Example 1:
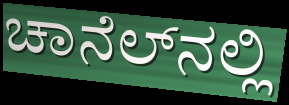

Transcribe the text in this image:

ಚಾನೆಲ್‌ನಲ್ಲಿ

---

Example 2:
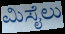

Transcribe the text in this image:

ಮಿಸೈಲು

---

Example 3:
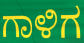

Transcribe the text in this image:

ಗಾಳಿಗ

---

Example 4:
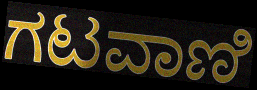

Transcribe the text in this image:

ಗಟವಾಣಿ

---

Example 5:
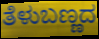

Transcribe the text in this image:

ತೆಳುಬಣ್ಣದ